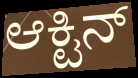
ಆಕ್ಟಿನ್